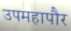
उपमहापौर